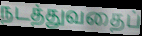
நடத்துவதைப்